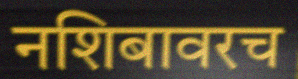
नशिबावरच